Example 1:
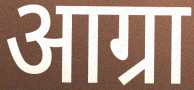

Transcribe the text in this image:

आग्रा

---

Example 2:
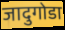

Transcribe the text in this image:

जादुगोडा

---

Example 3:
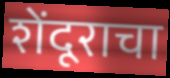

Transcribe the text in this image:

शेंदूराचा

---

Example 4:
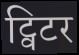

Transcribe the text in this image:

ट्विटर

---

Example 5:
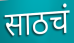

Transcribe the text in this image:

साठचं